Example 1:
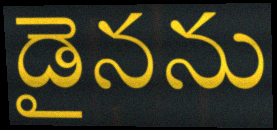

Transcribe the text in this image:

డైనను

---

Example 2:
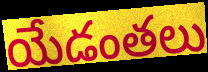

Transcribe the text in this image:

యేడంతలు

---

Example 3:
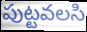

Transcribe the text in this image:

పుట్టవలసి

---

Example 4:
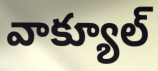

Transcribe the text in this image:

వాక్యూల్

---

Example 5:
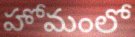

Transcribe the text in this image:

హోమంలో